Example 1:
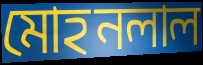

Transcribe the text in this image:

মোহনলাল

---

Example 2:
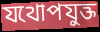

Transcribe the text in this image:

যথোপযুক্ত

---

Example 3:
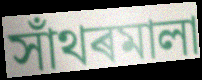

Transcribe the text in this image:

সাঁথৰমালা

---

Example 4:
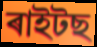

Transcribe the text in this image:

ৰাইটছ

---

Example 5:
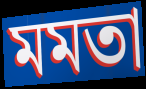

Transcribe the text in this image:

মমতা